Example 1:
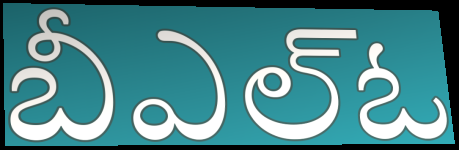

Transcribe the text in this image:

బీఎల్ఓ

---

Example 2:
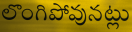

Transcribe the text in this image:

లొంగిపోవునట్లు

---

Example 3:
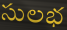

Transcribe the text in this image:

సులభ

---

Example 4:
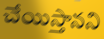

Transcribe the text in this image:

చేయిస్తానని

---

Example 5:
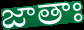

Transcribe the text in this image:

జాతాః